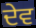
ਦੇਵ